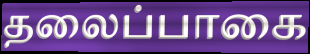
தலைப்பாகை